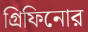
গ্রিফিনোর